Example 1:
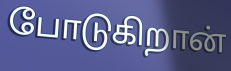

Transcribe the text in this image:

போடுகிறான்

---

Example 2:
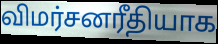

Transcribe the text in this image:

விமர்சனரீதியாக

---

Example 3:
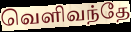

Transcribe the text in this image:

வெளிவந்தே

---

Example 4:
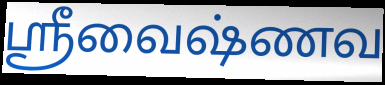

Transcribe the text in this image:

ஸ்ரீவைஷ்ணவ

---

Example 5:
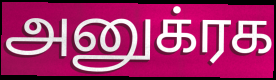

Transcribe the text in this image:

அனுக்ரக